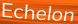
Echelon